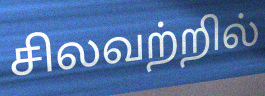
சிலவற்றில்